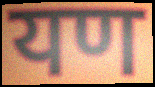
यण